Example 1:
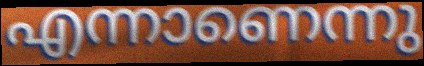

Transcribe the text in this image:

എന്നാണെന്നു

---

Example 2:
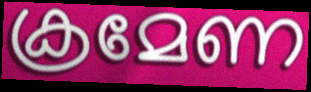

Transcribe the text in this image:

ക്രമേണ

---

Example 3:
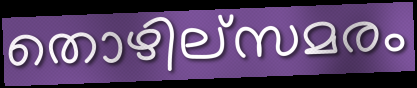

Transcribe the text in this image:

തൊഴില്സമരം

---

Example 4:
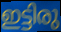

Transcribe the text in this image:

ഇട്ടിരു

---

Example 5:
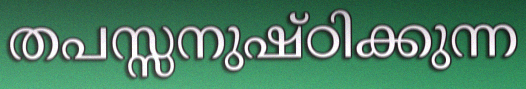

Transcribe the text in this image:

തപസ്സനുഷ്ഠിക്കുന്ന